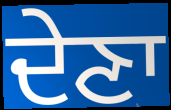
ਦੇਣਾ